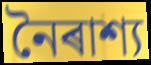
নৈৰাশ্য